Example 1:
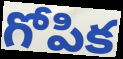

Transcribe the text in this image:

గోపిక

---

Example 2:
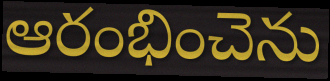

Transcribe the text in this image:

ఆరంభించెను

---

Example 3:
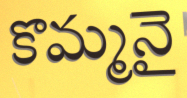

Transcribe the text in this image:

కొమ్మనై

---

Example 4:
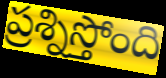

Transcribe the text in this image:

ప్రశ్నిస్తోంది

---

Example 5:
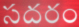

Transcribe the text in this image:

సదరం